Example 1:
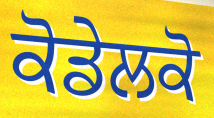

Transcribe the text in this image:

ਕੋਡੇਲਕੋ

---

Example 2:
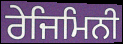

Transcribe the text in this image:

ਰੇਜਿਮਿਨੀ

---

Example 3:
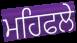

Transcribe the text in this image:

ਮਹਿਫਲੇ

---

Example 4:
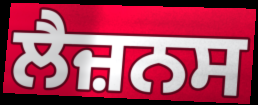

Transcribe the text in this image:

ਲੈਜ਼ਨਸ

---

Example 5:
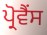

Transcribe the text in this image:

ਪ੍ਰੋਵੈਂਸ